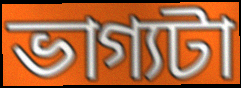
ভাগ্যটা